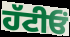
ਹੱਟੀਓਂ